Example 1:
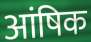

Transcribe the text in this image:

आंषिक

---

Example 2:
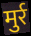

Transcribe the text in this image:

मुर्र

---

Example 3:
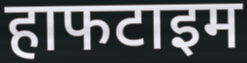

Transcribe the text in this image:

हाफटाइम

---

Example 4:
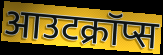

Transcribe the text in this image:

आउटक्रॉप्स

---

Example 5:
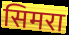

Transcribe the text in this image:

सिमरा